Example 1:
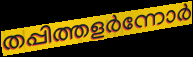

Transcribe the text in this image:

തപ്പിത്തളർന്നോർ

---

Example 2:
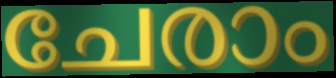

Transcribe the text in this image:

ചേരാം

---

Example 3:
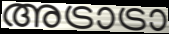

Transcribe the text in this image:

അട്രാട്രാ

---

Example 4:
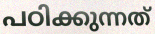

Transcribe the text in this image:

പഠിക്കുന്നത്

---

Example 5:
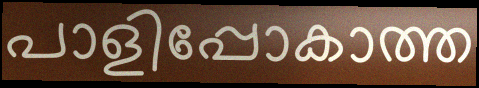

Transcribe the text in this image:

പാളിപ്പോകാത്ത